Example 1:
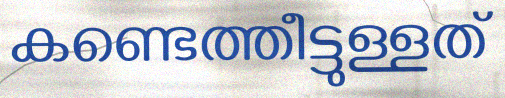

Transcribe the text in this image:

കണ്ടെത്തീട്ടുള്ളത്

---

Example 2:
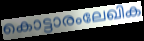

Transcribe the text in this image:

കൊട്ടാരംലേഖിക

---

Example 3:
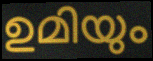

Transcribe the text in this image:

ഉമിയും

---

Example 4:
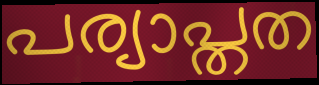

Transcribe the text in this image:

പര്യാപ്തത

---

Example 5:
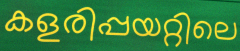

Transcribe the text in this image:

കളരിപ്പയറ്റിലെ